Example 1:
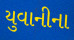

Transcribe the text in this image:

યુવાનીના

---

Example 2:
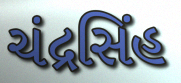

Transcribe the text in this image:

ચંદ્રસિંહ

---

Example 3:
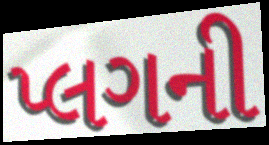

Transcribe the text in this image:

પ્લગની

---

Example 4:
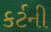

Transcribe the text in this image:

કર્ટની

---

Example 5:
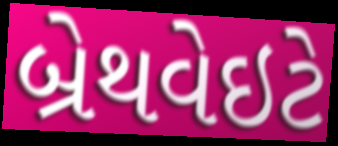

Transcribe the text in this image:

બ્રેથવેઇટે